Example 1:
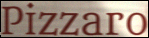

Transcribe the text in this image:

Pizzaro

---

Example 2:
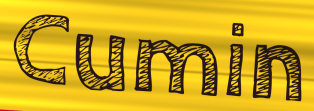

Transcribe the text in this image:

Cumin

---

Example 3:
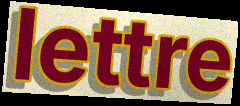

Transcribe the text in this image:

lettre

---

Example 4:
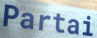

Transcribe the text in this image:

Partai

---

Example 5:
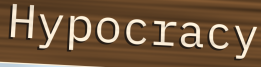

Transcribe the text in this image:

Hypocracy